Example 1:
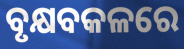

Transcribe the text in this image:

ବୃକ୍ଷବକଳରେ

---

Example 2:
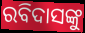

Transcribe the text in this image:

ରବିଦାସଙ୍କୁ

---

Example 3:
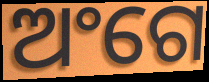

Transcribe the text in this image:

ଅଂଗେ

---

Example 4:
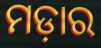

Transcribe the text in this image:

ମଡ଼ାର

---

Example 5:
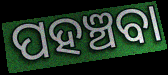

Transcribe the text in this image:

ପହଞ୍ଚବା